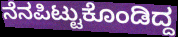
ನೆನಪಿಟ್ಟುಕೊಂಡಿದ್ದ